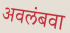
अवलंबवा